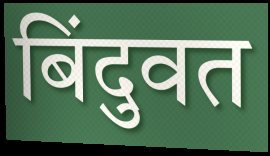
बिंदुवत